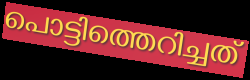
പൊട്ടിത്തെറിച്ചത്